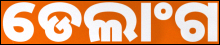
ଡେଲାଂଗ